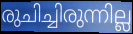
രുചിച്ചിരുന്നില്ല